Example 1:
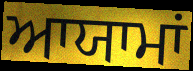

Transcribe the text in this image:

ਆਯਾਮਾਂ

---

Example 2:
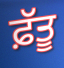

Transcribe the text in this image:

ਫ਼ੱਤੂ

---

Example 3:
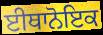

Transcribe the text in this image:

ਈਥਾਨੋਇਕ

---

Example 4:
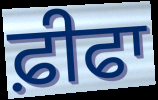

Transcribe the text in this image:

ਫ਼ੀਫਾ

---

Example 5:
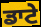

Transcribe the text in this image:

ਡਾਟੇ